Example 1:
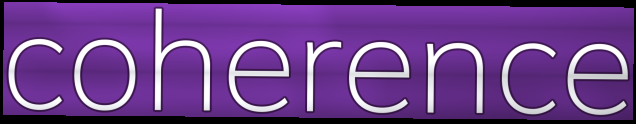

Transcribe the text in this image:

coherence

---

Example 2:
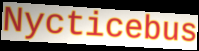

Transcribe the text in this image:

Nycticebus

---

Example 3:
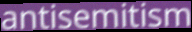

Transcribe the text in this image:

antisemitism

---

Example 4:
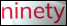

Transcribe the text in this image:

ninety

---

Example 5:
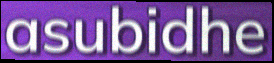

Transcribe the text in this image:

asubidhe